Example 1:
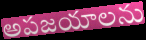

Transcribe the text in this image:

అపజయాలను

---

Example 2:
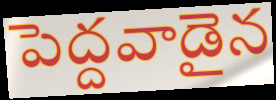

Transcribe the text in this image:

పెద్దవాడైన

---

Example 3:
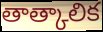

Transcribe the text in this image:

తాత్కాలిక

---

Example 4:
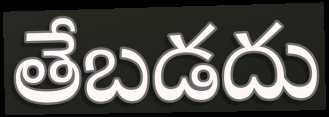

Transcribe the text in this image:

తేబడదు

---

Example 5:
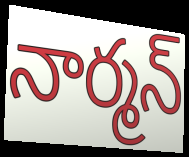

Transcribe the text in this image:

నార్మన్